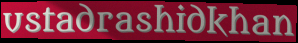
ustadrashidkhan